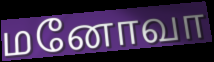
மனோவா